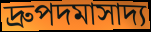
দ্রুপদমাসাদ্য